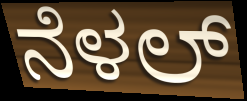
ನೆಳಲ್